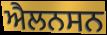
ਐਲਨਸਨ